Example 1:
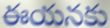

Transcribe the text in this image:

ఈయనకు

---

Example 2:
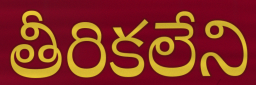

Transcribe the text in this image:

తీరికలేని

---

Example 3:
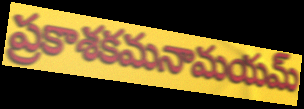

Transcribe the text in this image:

ప్రకాశకమనామయమ్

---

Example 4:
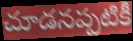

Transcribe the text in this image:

చూడనప్పటికీ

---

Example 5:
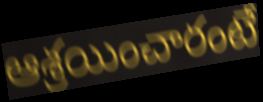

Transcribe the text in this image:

ఆశ్రయించారంటే